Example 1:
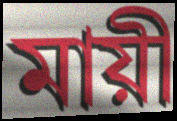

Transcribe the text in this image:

মায়ী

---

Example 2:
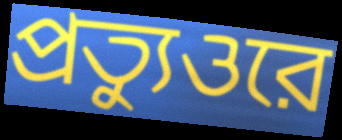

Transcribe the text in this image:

প্রত্যুওরে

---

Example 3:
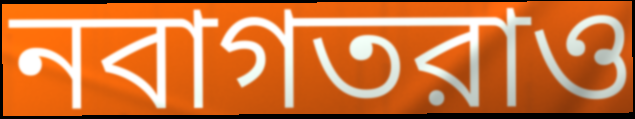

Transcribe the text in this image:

নবাগতরাও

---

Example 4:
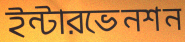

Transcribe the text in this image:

ইন্টারভেনশন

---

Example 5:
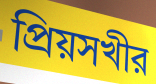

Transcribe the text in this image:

প্রিয়সখীর